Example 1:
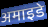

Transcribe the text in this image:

अमाइडे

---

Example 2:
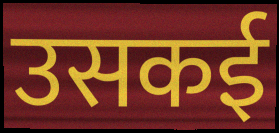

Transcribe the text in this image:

उसकई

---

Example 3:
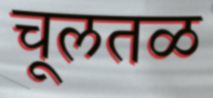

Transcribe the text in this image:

चूलतळ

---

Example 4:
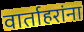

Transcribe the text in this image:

वार्ताहरांना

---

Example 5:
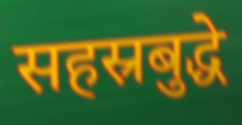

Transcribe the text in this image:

सहस्रबुद्धे